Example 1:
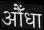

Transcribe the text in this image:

औँधा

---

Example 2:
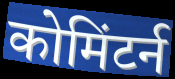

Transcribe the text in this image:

कोमिंटर्न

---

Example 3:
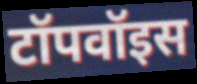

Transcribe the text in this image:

टॉपवॉइस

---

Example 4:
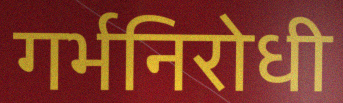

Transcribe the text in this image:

गर्भनिरोधी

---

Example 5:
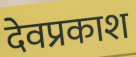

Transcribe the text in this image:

देवप्रकाश